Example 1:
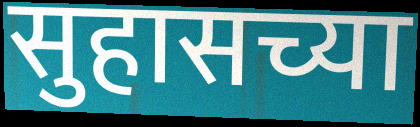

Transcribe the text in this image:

सुहासच्या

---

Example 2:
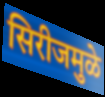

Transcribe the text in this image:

सिरीजमुळे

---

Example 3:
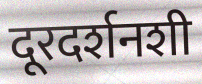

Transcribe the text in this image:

दूरदर्शनशी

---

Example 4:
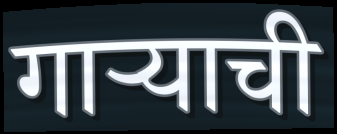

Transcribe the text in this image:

गाऱ्याची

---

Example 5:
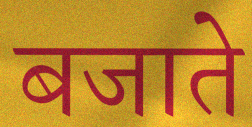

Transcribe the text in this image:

बजाते